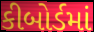
કીબોર્ડમાં